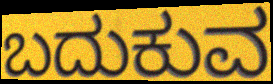
ಬದುಕುವ